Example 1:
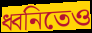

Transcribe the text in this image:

ধ্বনিতেও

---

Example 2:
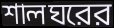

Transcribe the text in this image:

শালঘরের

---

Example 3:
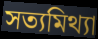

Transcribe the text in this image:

সত্যমিথ্যা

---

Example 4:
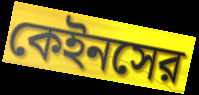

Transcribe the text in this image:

কেইনসের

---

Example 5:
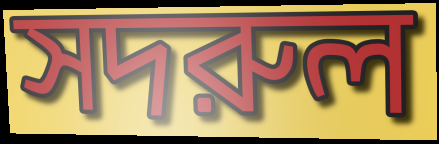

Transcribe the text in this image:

সদরুল